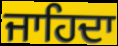
ਜਾਹਿਦਾ